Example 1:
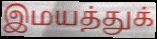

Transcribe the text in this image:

இமயத்துக்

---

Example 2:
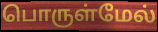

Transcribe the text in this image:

பொருள்மேல்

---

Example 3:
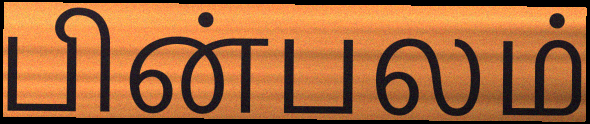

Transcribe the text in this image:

பின்பலம்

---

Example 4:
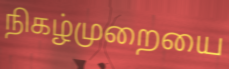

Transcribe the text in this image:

நிகழ்முறையை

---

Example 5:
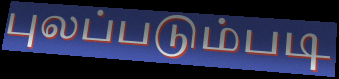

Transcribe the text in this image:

புலப்படும்படி